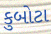
કુબોટા